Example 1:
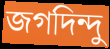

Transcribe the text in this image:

জগদিন্দু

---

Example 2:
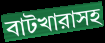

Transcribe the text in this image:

বাটখারাসহ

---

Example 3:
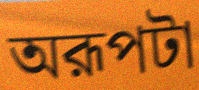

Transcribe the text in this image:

অরূপটা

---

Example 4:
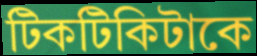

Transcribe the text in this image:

টিকটিকিটাকে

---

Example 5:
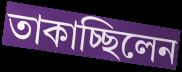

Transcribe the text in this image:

তাকাচ্ছিলেন